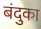
बंदुका